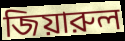
জিয়ারুল